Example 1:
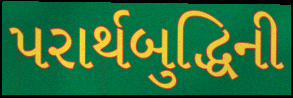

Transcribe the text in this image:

પરાર્થબુદ્ધિની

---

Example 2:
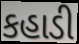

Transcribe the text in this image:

કહાડી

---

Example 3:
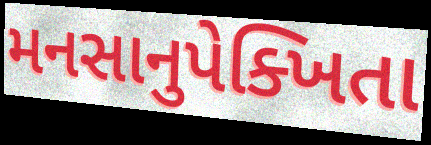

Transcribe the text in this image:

મનસાનુપેક્ખિતા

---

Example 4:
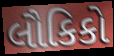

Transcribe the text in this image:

લૌકિકો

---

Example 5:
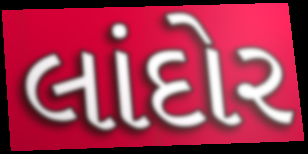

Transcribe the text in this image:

લાંદોર